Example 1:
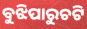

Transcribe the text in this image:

ବୁଝିପାରୁଚଟି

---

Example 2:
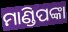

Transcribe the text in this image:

ମାଣ୍ଡିପଙ୍କା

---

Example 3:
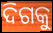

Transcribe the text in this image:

ଦିଗକୁ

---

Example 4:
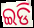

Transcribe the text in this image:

ଇଡି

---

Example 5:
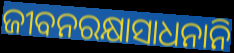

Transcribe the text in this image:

ଜୀବନରକ୍ଷାସାଧନାନି